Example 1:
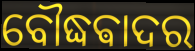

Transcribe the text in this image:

ବୌଦ୍ଧଵାଦର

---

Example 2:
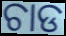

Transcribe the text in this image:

ଚାଡ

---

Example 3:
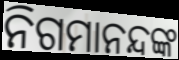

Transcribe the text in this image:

ନିଗମାନନ୍ଦଙ୍କ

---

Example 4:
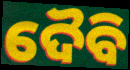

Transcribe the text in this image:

ଦୈବି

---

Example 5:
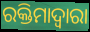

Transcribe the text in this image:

ରକ୍ତିମାଦ୍ୱାରା